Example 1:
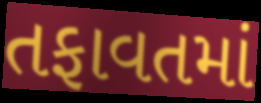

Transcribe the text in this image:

તફાવતમાં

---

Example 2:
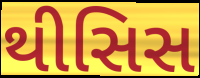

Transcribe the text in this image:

થીસિસ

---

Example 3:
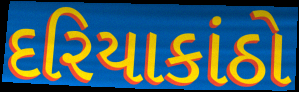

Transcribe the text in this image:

દરિયાકાંઠો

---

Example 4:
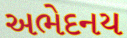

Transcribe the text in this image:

અભેદનય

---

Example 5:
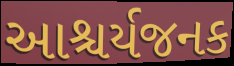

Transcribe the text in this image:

આશ્ચર્યજનક